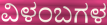
ವಿಳಂಬಗಳ